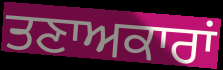
ਤਣਾਅਕਾਰਾਂ